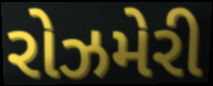
રોઝમેરી